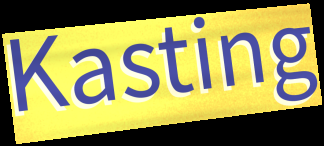
Kasting